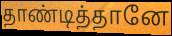
தாண்டித்தானே